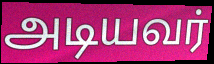
அடியவர்